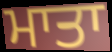
ਮਾਤਾ